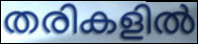
തരികളിൽ